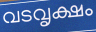
വടവൃക്ഷം